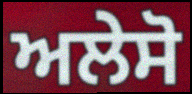
ਅਲੇਸੋ